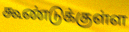
கூண்டுக்குள்ள